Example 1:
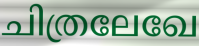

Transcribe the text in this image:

ചിത്രലേഖേ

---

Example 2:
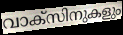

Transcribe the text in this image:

വാക്സിനുകളും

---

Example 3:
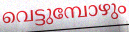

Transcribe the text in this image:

വെട്ടുമ്പോഴും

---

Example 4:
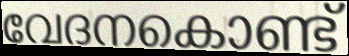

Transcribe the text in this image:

വേദനകൊണ്ട്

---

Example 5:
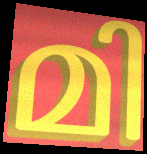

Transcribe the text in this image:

മി